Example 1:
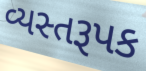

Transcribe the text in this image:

વ્યસ્તરૂપક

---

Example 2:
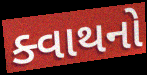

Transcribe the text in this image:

ક્વાથનો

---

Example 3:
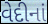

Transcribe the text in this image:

વેદીનાં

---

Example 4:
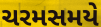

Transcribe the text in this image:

ચરમસમયે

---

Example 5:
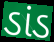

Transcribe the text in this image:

ડાંડ